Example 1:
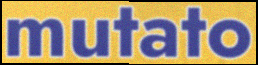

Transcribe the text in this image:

mutato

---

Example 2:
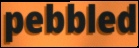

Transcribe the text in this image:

pebbled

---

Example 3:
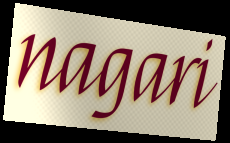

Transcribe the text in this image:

nagari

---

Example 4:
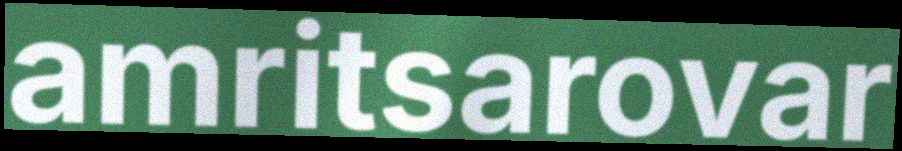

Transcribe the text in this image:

amritsarovar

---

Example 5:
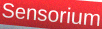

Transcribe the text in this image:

Sensorium